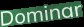
Dominar